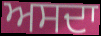
ਅਸਦਾ